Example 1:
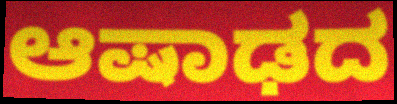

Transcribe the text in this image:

ಆಷಾಢದ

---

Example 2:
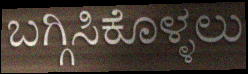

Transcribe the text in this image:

ಬಗ್ಗಿಸಿಕೊಳ್ಳಲು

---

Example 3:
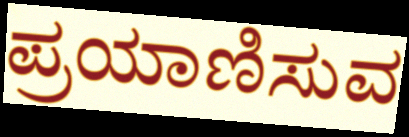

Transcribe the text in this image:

ಪ್ರಯಾಣಿಸುವ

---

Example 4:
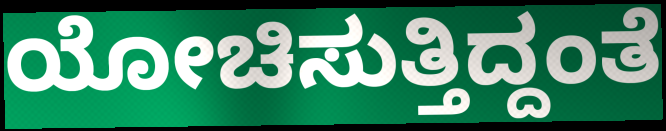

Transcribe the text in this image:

ಯೋಚಿಸುತ್ತಿದ್ದಂತೆ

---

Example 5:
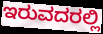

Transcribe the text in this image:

ಇರುವದರಲ್ಲಿ